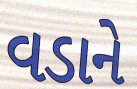
વડાને